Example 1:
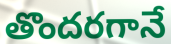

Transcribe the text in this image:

తొందరగానే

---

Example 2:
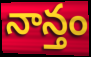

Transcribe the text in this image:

నాన్తం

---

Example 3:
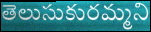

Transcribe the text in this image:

తెలుసుకురమ్మని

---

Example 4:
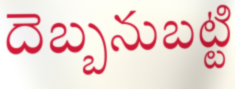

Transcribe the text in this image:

దెబ్బనుబట్టి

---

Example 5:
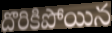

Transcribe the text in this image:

దొరికిపోయిన